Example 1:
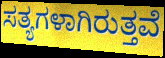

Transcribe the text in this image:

ಸತ್ಯಗಳಾಗಿರುತ್ತವೆ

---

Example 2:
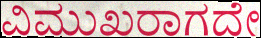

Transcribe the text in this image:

ವಿಮುಖರಾಗದೇ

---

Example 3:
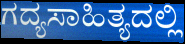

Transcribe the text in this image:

ಗದ್ಯಸಾಹಿತ್ಯದಲ್ಲಿ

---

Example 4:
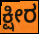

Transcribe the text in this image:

ಕ್ಷೀರ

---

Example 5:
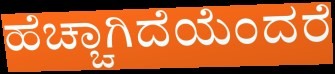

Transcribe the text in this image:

ಹೆಚ್ಚಾಗಿದೆಯೆಂದರೆ